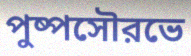
পুষ্পসৌরভে